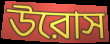
উরোস